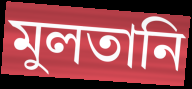
মুলতানি